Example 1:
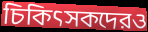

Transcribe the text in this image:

চিকিৎসকদেরও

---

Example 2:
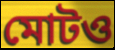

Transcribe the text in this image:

মোটও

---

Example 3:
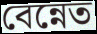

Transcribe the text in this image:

বেন্নেত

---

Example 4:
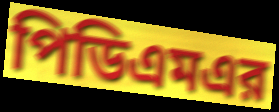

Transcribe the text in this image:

পিডিএমএর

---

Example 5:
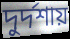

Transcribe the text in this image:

দুর্দশায়